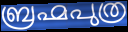
ബ്രഹ്മപുത്ര